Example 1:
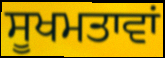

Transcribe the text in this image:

ਸੂਖਮਤਾਵਾਂ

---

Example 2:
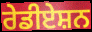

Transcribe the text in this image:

ਰੇਡੀਏਸ਼ਨ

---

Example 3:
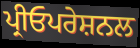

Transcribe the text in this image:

ਪ੍ਰੀਓਪਰੇਸ਼ਨਲ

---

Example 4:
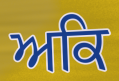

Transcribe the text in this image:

ਅਕਿ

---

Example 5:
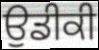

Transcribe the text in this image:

ਉਡੀਕੀ